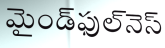
మైండ్‌ఫుల్‌నెస్